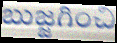
బుజ్జగించి